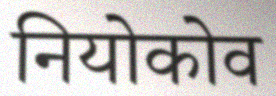
नियोकोव